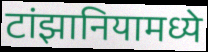
टांझानियामध्ये